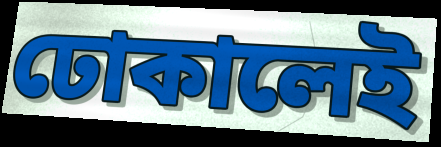
ঢোকালেই